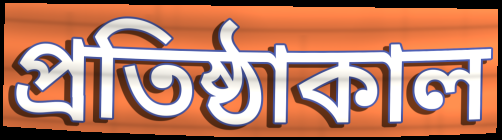
প্রতিষ্ঠাকাল